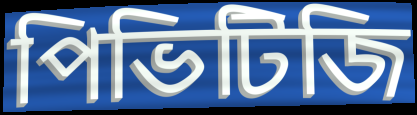
পিভিটিজি